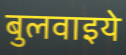
बुलवाइये